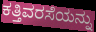
ಕತ್ತಿವರಸೆಯನ್ನು